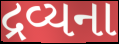
દ્રવ્યના